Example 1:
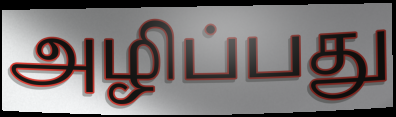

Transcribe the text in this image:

அழிப்பது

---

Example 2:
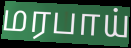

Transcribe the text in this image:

மரபாய்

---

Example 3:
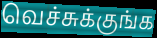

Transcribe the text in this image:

வெச்சுக்குங்க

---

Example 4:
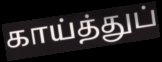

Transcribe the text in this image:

காய்த்துப்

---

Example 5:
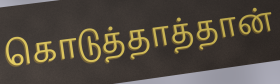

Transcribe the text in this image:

கொடுத்தாத்தான்